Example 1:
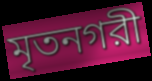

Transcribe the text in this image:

মৃতনগরী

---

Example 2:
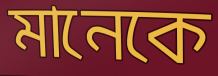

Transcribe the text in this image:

মানেকে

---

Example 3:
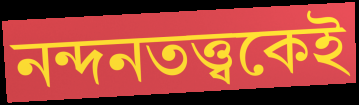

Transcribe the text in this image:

নন্দনতত্ত্বকেই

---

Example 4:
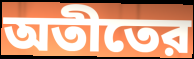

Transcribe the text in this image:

অতীতের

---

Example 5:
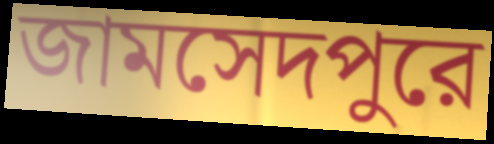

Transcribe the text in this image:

জামসেদপুরে